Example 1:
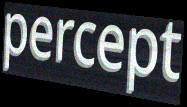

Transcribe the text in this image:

percept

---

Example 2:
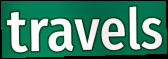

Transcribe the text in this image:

travels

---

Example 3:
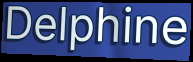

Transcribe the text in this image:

Delphine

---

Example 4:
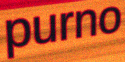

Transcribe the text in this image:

purno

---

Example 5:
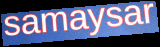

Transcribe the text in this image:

samaysar